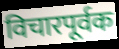
विचारपूर्वक